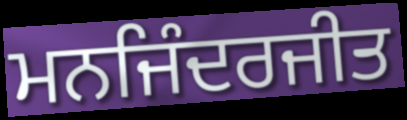
ਮਨਜਿੰਦਰਜੀਤ